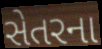
સેતરના